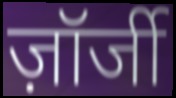
ज़ॉर्जी